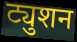
ट्युशन